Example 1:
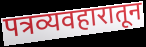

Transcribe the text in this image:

पत्रव्यवहारातून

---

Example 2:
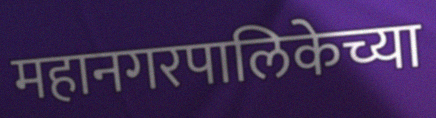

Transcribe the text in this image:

महानगरपालिकेच्या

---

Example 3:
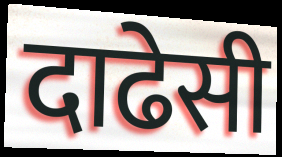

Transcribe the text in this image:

दाढेसी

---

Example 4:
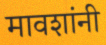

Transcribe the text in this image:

मावशांनी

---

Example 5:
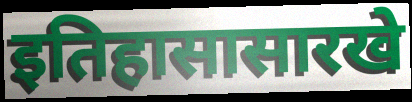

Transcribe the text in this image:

इतिहासासारखे